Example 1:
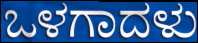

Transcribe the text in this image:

ಒಳಗಾದಳು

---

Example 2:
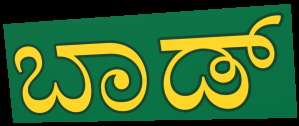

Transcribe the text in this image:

ಬಾಡ್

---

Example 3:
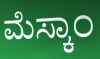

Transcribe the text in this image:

ಮೆಸ್ಕಾಂ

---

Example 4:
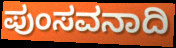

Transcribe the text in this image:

ಪುಂಸವನಾದಿ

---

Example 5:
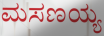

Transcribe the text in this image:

ಮಸಣಯ್ಯ